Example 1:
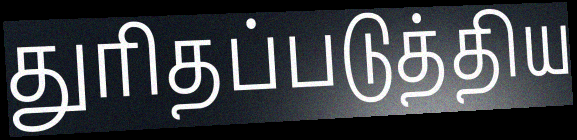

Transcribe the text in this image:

துரிதப்படுத்திய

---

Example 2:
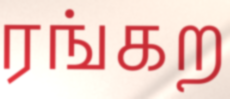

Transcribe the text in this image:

ரங்கற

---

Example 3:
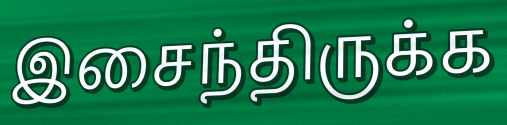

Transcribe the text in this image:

இசைந்திருக்க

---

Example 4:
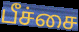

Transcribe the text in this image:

பீச்சை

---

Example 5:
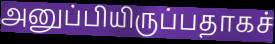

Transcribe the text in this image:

அனுப்பியிருப்பதாகச்